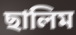
ছালিম